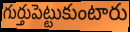
గుర్తుపెట్టుకుంటారు